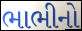
ભાભીનો